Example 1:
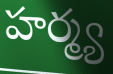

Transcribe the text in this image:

హర్మ్య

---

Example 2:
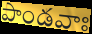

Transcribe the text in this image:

పాండవాః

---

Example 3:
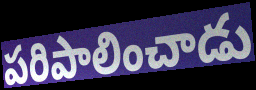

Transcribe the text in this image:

పరిపాలించాడు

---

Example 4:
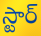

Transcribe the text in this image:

స్టార్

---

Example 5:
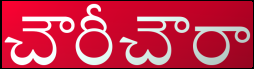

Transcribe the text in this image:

చౌరీచౌరా